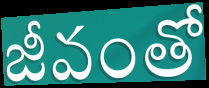
జీవంతో